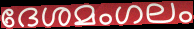
ദേശമംഗലം